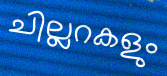
ചില്ലറകളും